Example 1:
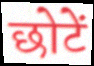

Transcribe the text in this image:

छोटें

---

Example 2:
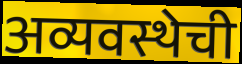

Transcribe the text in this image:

अव्यवस्थेची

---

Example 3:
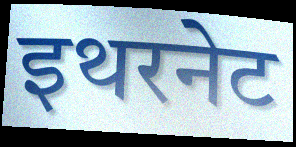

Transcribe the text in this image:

इथरनेट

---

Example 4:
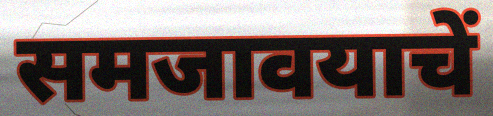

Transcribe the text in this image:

समजावयाचें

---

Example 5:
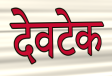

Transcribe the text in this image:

देवटेक